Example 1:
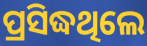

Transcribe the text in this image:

ପ୍ରସିଦ୍ଧଥିଲେ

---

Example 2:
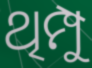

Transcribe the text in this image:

ଥିମ୍ପୁ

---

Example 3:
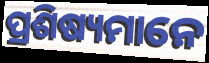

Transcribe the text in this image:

ପ୍ରଶିଷ୍ୟମାନେ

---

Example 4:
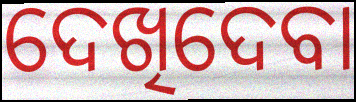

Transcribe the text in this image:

ଦେଖିଦେବା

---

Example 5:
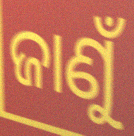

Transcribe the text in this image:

ଜାଣୁଁ